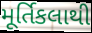
મૂર્તિકલાથી